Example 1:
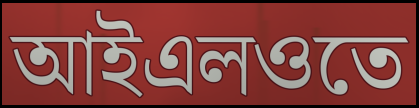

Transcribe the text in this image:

আইএলওতে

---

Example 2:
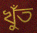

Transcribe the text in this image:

খুঁত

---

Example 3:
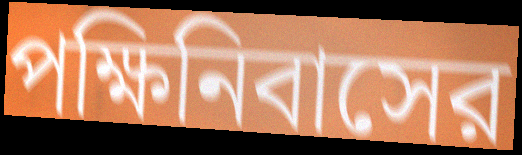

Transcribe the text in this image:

পক্ষিনিবাসের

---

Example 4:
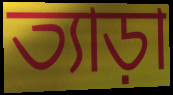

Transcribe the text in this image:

ত্যাড়া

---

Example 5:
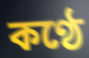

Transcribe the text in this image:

কণ্ঠে